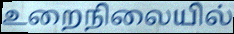
உறைநிலையில்